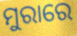
ମୁରାରେ